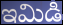
ఇమిడి